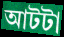
আটটা